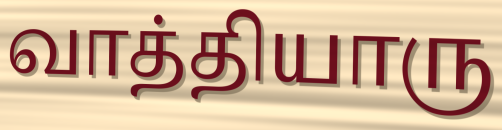
வாத்தியாரு